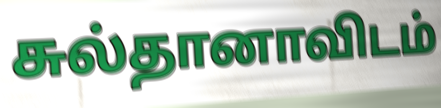
சுல்தானாவிடம்